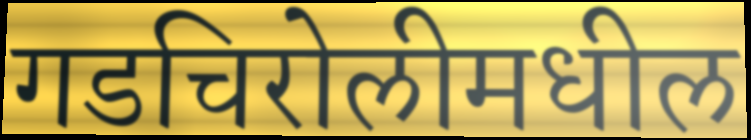
गडचिरोलीमधील